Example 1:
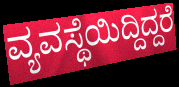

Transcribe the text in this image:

ವ್ಯವಸ್ಥೆಯಿದ್ದಿದ್ದರೆ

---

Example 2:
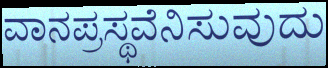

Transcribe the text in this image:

ವಾನಪ್ರಸ್ಥವೆನಿಸುವುದು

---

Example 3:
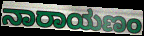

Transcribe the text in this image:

ನಾರಾಯಣಂ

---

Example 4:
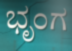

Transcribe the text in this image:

ಭೃಂಗ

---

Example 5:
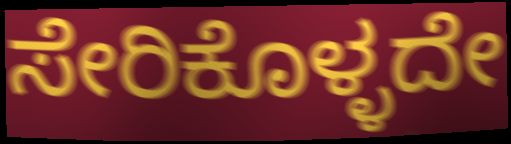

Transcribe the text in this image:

ಸೇರಿಕೊಳ್ಳದೇ